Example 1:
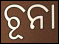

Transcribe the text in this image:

ଚୂନା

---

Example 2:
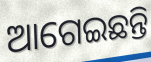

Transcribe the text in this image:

ଆଗେଇଛନ୍ତି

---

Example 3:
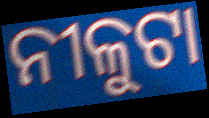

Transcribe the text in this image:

ନୀଳୁଟା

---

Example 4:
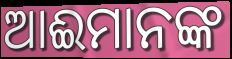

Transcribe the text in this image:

ଆଈମାନଙ୍କ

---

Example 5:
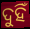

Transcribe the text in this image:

ଦୁହିଁ